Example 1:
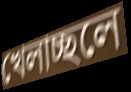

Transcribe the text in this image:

খেলাচ্ছলে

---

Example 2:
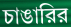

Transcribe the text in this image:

চাঙারির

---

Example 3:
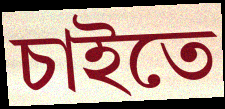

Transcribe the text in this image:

চাইতে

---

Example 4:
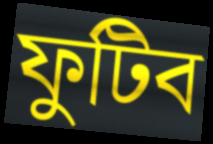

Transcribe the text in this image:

ফুটিব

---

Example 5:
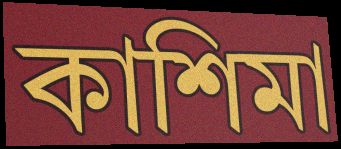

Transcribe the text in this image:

কাশিমা